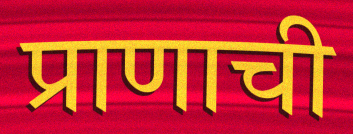
प्राणाची